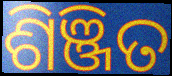
ଶିଞ୍ଜିତ